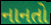
નાનતો